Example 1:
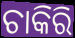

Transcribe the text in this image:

ଚାକିରି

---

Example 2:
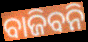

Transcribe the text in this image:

ବାଜିବନି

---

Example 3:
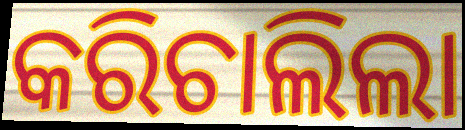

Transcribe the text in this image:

କରିଚାଲିଲା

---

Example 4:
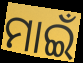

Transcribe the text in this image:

ମାଇଁ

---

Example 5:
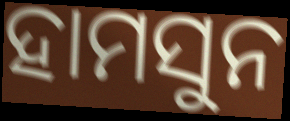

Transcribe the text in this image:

ହାମସୁନ